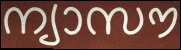
ന്യാസൗ